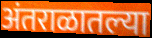
अंतराळातल्या